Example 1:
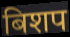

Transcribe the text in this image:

बिशप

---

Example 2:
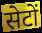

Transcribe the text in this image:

सेटों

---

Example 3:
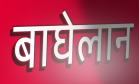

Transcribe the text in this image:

बाघेलान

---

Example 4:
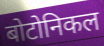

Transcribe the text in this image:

बोटोनिकल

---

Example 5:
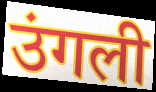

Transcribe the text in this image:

उंगली